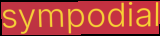
sympodial